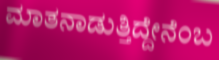
ಮಾತನಾಡುತ್ತಿದ್ದೇನೆಂಬ